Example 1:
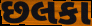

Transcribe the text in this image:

છલકા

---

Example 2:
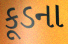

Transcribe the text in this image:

કૂડના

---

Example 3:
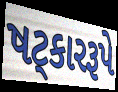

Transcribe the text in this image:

ષટ્કારરૂપે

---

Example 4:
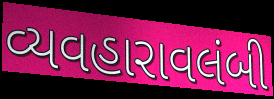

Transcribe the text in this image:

વ્યવહારાવલંબી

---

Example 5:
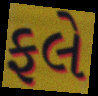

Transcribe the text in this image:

ફલે